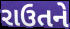
રાઉતને